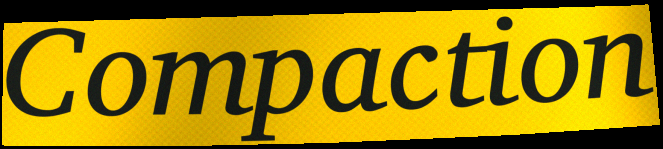
Compaction